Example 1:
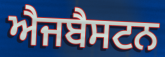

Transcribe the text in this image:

ਐਜਬੈਸਟਨ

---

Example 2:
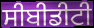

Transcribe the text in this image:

ਸੀਬੀਡੀਟੀ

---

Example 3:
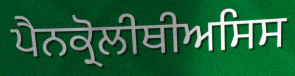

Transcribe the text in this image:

ਪੈਨਕ੍ਰੋਲੀਥੀਅਸਿਸ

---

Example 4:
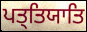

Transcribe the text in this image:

ਪਤ੍ਤਿਯਾਤਿ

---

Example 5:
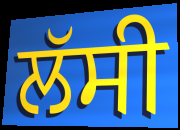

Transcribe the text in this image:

ਲੱਸੀ